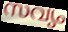
സവ്യം